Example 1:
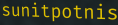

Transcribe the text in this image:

sunitpotnis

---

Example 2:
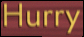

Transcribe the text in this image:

Hurry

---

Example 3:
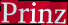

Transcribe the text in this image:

Prinz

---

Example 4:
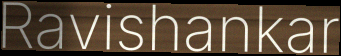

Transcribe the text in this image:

Ravishankar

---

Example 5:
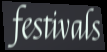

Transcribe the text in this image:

festivals